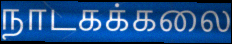
நாடகக்கலை